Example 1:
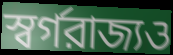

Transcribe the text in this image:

স্বর্গরাজ্যও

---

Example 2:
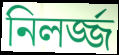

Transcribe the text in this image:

নিলর্জ্জ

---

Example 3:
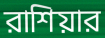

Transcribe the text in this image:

রাশিয়ার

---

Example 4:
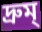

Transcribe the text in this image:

দ্রুম্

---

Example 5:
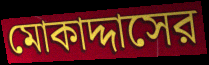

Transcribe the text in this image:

মোকাদ্দাসের